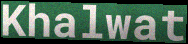
Khalwat